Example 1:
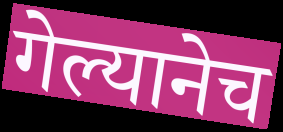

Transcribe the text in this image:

गेल्यानेच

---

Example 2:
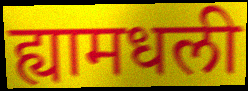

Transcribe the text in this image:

ह्यामधली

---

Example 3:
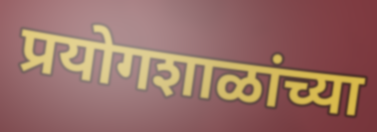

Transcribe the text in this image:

प्रयोगशाळांच्या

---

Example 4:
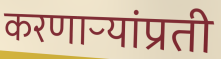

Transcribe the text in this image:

करणाऱ्यांप्रती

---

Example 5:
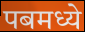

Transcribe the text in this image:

पबमध्ये